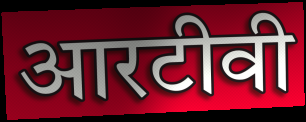
आरटीवी